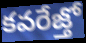
కవరేజ్తో